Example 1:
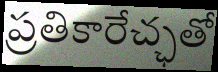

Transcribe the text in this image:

ప్రతికారేచ్ఛతో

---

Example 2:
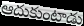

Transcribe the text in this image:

ఆదుకుంటాడు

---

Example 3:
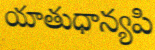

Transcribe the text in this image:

యాతుధాన్యపి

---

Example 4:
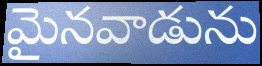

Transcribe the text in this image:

మైనవాడును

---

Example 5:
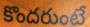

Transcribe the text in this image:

కొందరుంటే